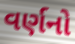
વર્ણનો